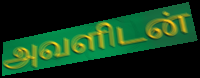
அவளிடன்